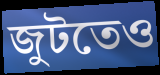
জুটতেও